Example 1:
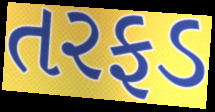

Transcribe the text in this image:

તરફડ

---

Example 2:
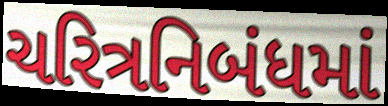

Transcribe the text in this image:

ચરિત્રનિબંધમાં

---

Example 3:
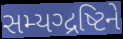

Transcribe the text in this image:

સમ્યગ્દ્રષ્ટિને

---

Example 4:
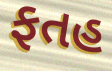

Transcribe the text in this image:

ફતહ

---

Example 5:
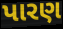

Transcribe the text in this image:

પારણ